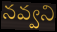
నవ్వని